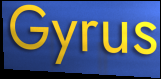
Gyrus